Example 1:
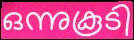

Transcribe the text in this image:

ഒന്നുകൂടി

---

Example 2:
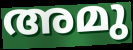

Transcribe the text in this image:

അമു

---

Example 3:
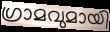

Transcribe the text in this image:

ഗ്രാമവുമായി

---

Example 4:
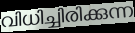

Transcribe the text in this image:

വിധിച്ചിരിക്കുന്ന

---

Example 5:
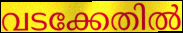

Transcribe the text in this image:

വടക്കേതിൽ